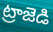
ట్రాజెడి